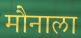
मौनाला